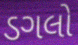
ડગલો